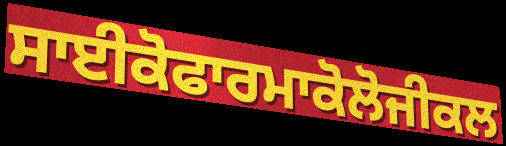
ਸਾਈਕੋਫਾਰਮਾਕੋਲੋਜੀਕਲ